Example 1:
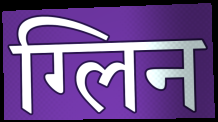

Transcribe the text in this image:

ग्लिन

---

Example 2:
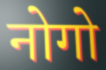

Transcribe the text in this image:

नोगो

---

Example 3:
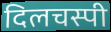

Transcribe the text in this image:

दिलचस्‍पी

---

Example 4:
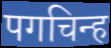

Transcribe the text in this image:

पगचिन्ह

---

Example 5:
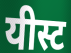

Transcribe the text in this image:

यीस्ट